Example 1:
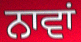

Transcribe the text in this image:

ਨਾਵਾਂ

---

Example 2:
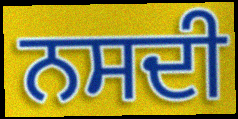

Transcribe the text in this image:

ਨਸਦੀ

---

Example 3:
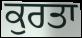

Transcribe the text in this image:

ਕੁਰਤਾ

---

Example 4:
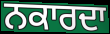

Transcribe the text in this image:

ਨਕਾਰਦਾ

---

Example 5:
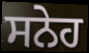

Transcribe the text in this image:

ਸਨੇਹ